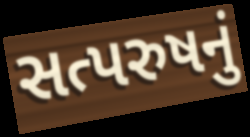
સત્પરુષનું